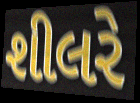
શીલરે